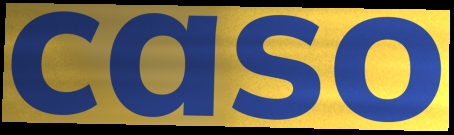
caso